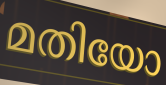
മതിയോ